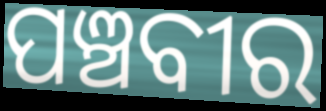
ପଞ୍ଚବୀର